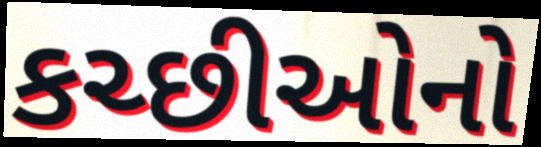
કચ્છીઓનો